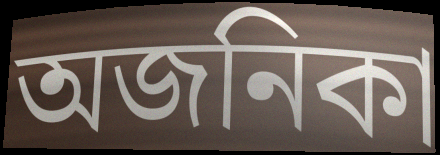
অজনিকা